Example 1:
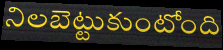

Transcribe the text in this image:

నిలబెట్టుకుంటోంది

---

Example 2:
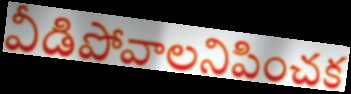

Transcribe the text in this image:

వీడిపోవాలనిపించక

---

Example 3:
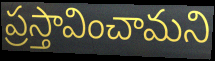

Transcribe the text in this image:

ప్రస్తావించామని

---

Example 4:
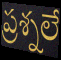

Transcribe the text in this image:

ప్రశ్నలే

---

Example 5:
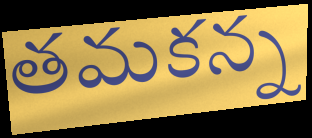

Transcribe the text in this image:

తమకన్న